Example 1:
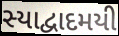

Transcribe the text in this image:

સ્યાદ્વાદમયી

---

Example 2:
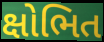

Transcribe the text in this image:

ક્ષોભિત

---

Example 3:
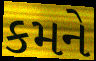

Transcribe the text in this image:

કમને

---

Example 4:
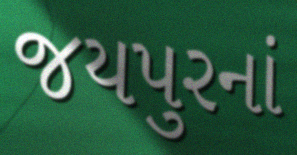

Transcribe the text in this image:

જયપુરનાં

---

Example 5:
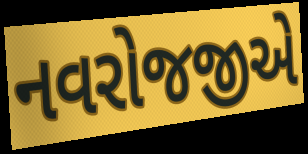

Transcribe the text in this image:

નવરોજજીએ